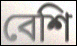
বেশি